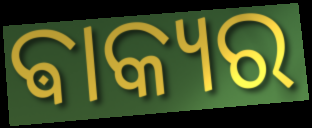
ଵାକ୍ଯର